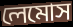
লেমোস